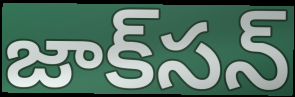
జాక్‌సన్